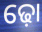
ଢ଼ୋ